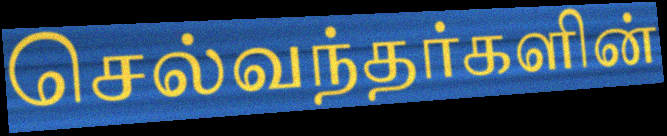
செல்வந்தர்களின்